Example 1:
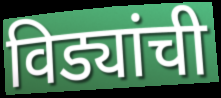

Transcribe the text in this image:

विड्यांची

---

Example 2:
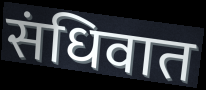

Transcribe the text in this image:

संधिवात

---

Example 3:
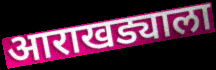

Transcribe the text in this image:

आराखड्याला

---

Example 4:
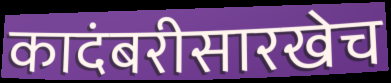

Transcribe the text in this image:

कादंबरीसारखेच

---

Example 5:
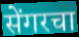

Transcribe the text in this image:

सेंगरचा